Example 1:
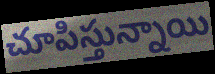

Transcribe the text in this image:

చూపిస్తున్నాయి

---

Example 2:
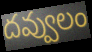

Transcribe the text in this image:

దవ్వులం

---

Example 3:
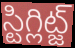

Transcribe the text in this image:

స్టిగ్లిట్జ్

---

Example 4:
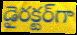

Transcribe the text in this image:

డైరక్టర్‌గా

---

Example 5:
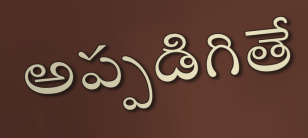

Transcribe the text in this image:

అప్పడిగితే